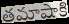
తమాషాకి